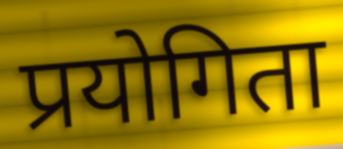
प्रयोगिता